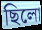
ছিলো